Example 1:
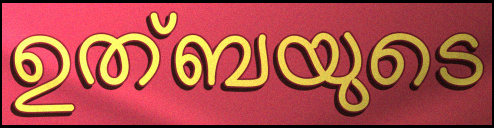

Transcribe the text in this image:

ഉത്ബയുടെ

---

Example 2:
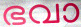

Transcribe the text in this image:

ഭവാ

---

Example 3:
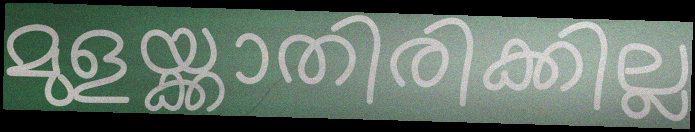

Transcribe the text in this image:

മുളയ്ക്കാതിരിക്കില്ല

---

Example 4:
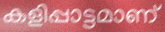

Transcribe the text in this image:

കളിപ്പാട്ടമാണ്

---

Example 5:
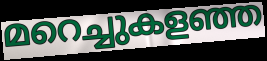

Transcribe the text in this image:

മറെച്ചുകളഞ്ഞ